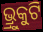
ଭ୍ର୍ରୁକୁଟି